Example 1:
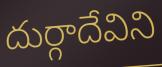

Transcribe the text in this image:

దుర్గాదేవిని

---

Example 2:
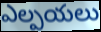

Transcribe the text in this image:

ఎల్పయలు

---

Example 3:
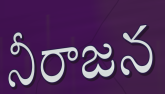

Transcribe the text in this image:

నీరాజన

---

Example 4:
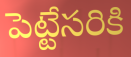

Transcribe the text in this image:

పెట్టేసరికి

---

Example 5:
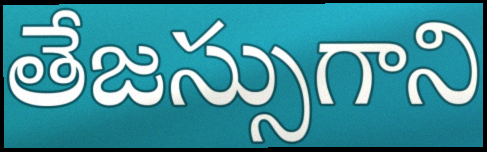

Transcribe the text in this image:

తేజస్సుగాని